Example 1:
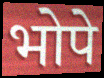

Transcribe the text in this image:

भोपे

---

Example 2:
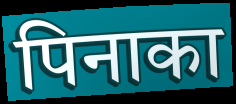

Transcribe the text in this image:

पिनाका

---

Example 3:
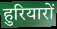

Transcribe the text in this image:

हुरियारों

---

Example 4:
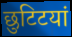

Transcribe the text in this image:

छुटिटयां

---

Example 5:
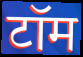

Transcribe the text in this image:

टॉम